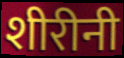
शीरीनी